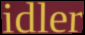
idler